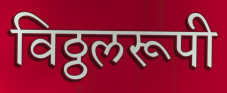
विठ्ठलरूपी